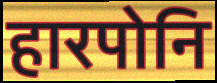
हारपोनि